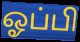
ஓப்பி